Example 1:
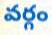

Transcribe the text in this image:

వర్గం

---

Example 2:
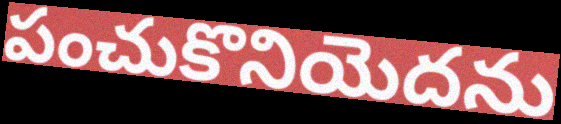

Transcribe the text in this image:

పంచుకొనియెదను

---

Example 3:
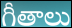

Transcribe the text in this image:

గీతాలు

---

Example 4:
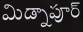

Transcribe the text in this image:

మిడ్నాపూర్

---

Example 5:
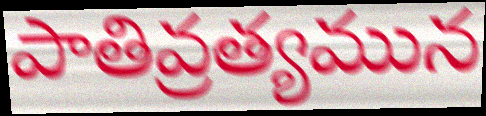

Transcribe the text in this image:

పాతివ్రత్యమున